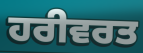
ਹਰੀਵਰਤ